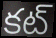
కట్